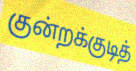
குன்றக்குடித்